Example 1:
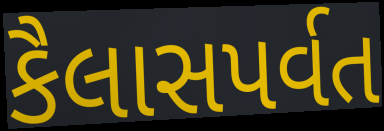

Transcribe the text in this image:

કૈલાસપર્વત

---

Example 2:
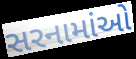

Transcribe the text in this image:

સરનામાંઓ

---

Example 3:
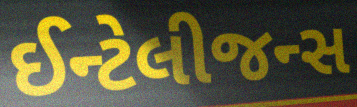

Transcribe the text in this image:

ઈન્ટેલીજન્સ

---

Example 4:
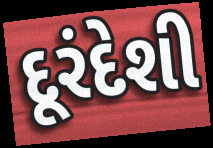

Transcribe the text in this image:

દૂરંદેશી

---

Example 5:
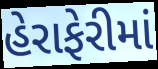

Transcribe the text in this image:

હેરાફેરીમાં